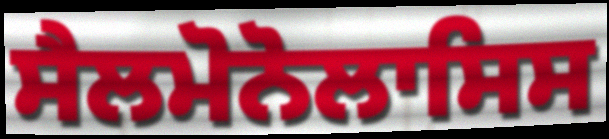
ਸੈਲਮੋਨੋਲਾਸਿਸ